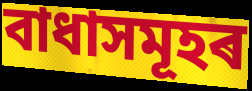
বাধাসমূহৰ